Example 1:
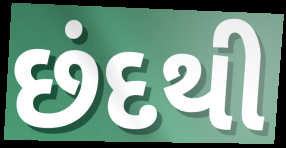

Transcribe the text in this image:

છંદથી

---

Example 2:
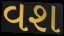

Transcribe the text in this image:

વશ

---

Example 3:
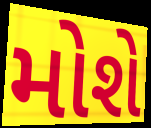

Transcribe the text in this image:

મોશે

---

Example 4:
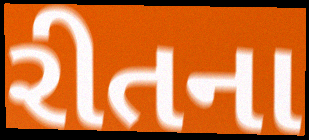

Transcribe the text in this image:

રીતના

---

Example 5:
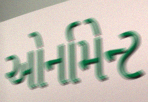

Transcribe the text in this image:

ઓર્નામેન્ટ